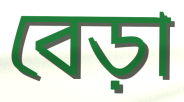
বেড়া